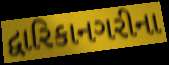
દ્વારિકાનગરીના